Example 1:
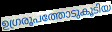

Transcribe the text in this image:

ഉഗ്രരൂപത്തോടുകൂടിയ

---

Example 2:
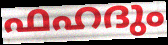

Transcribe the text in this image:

ഫഹദും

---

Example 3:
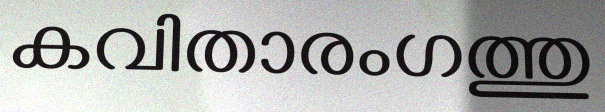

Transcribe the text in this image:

കവിതാരംഗത്തു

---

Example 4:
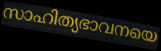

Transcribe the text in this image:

സാഹിത്യഭാവനയെ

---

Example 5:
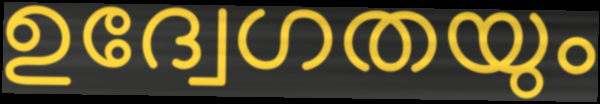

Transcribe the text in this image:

ഉദ്വേഗതയും